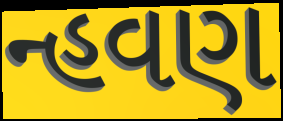
ન્હવણ